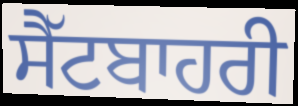
ਸੈੱਟਬਾਹਰੀ